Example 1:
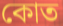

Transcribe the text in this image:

কোত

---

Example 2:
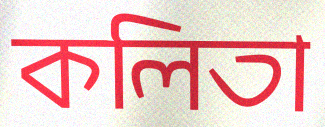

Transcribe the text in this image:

কলিতা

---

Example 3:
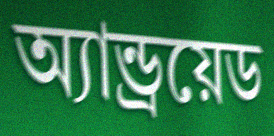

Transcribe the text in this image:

অ্যান্ড্রয়েড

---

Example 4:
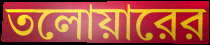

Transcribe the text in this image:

তলোয়ারের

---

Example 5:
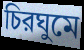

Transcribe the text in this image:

চিরঘুমে